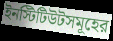
ইনস্টিটিউটসমূহের